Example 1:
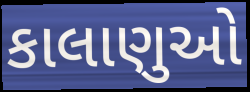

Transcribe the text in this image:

કાલાણુઓ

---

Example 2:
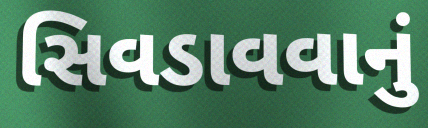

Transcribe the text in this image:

સિવડાવવાનું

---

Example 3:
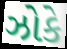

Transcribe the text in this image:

ઝોકે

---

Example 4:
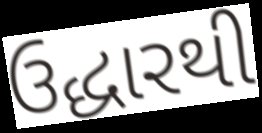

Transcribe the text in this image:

ઉદ્ધારથી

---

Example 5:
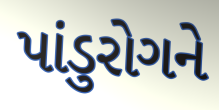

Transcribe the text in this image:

પાંડુરોગને